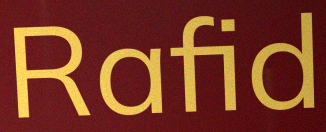
Rafid